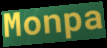
Monpa